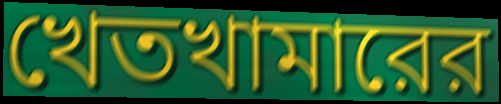
খেতখামারের